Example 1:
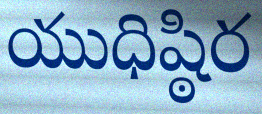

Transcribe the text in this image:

యుధిష్ఠిర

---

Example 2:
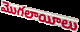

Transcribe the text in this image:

మొగలాయీలు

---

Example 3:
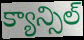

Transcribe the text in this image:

క్యాన్సిల్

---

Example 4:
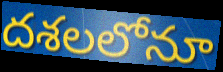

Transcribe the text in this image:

దశలలోనూ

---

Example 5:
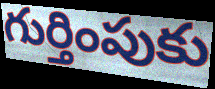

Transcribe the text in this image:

గుర్తింపుకు